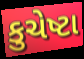
કુચેષ્ટા